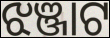
ଝଞ୍ଜାଟ